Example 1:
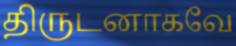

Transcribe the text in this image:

திருடனாகவே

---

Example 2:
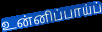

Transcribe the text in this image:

உன்னிப்பாய்ப்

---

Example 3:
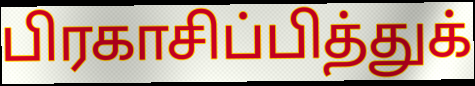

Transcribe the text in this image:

பிரகாசிப்பித்துக்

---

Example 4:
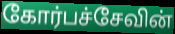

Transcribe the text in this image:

கோர்பச்சேவின்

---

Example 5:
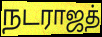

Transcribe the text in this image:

நடராஜத்